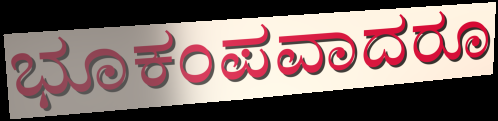
ಭೂಕಂಪವಾದರೂ